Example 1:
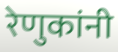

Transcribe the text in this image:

रेणुकांनी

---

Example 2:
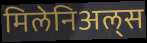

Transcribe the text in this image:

मिलेनिअल्स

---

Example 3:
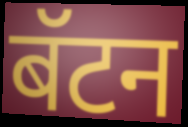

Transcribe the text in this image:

बॅटन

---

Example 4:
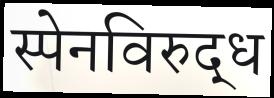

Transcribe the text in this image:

स्पेनविरुद्ध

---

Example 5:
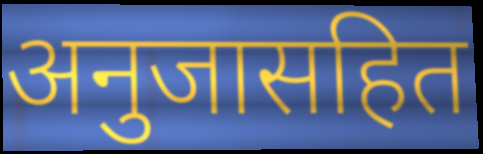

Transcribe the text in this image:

अनुजासहित